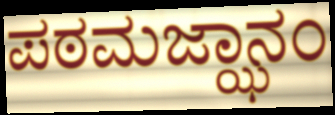
ಪಠಮಜ್ಝಾನಂ